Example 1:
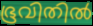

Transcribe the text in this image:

ഭൂവിതിൽ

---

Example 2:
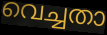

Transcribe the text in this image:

വെച്ചതാ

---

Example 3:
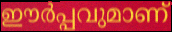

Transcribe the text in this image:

ഈർപ്പവുമാണ്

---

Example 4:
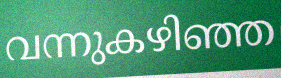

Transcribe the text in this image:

വന്നുകഴിഞ്ഞ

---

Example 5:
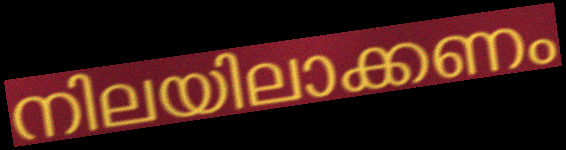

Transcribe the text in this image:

നിലയിലാക്കണം